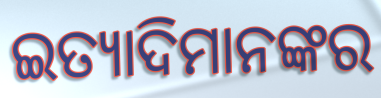
ଇତ୍ୟାଦିମାନଙ୍କର